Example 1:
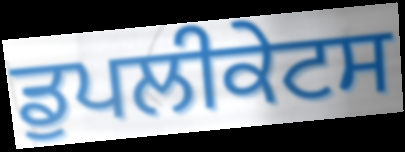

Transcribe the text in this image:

ਡੁਪਲੀਕੇਟਸ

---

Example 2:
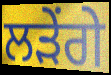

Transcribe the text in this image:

ਲੜੇਂਗੇ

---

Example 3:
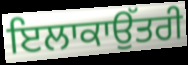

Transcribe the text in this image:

ਇਲਾਕਾਉੱਤਰੀ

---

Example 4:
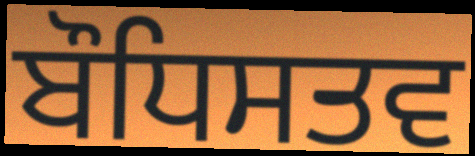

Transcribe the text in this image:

ਬੌਧਿਸਤਵ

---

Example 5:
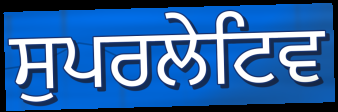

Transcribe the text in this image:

ਸੁਪਰਲੇਟਿਵ